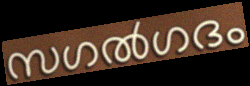
സഗൽഗദം